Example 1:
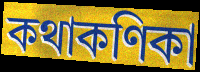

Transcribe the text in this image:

কথাকণিকা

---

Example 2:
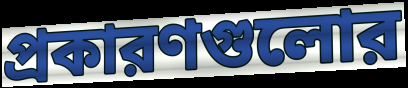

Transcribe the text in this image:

প্রকারণগুলোর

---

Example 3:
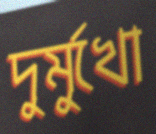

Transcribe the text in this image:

দুর্মুখো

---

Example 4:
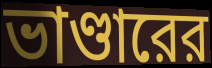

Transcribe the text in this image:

ভাণ্ডারের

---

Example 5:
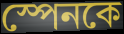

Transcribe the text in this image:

স্পেনকে